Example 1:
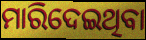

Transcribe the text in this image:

ମାରିଦେଇଥିବା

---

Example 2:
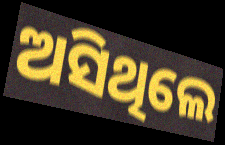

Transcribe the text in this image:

ଅସିଥିଲେ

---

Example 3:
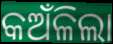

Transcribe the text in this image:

କଅଁଳିଲା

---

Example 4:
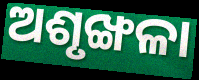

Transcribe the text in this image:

ଅଶୃଙ୍ଖଳା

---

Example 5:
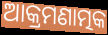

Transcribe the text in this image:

ଆକ୍ରମଣାତ୍ମକ